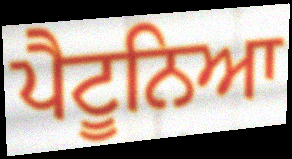
ਪੈਟੂਨਿਆ